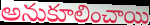
అనుకూలించాయి